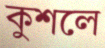
কুশলে